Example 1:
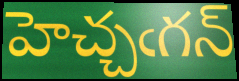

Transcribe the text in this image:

హెచ్చఁగన్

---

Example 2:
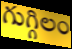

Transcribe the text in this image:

గుగ్గిలం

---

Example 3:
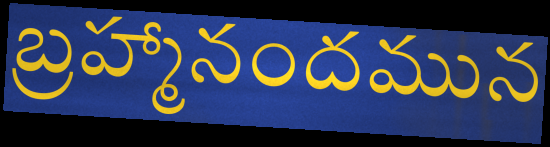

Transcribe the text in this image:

బ్రహ్మానందమున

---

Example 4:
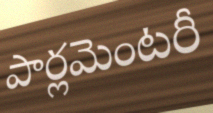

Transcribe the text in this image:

పార్లమెంటరీ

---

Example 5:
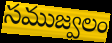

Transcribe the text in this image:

సముజ్వలం